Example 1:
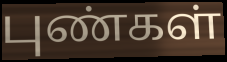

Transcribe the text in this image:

புண்கள்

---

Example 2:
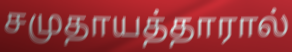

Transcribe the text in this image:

சமுதாயத்தாரால்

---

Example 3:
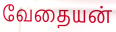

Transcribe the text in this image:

வேதையன்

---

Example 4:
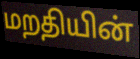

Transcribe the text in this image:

மறதியின்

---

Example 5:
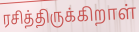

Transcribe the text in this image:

ரசித்திருக்கிறாள்